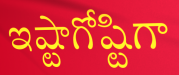
ఇష్టాగోష్టిగా